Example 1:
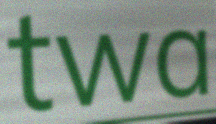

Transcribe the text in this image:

twa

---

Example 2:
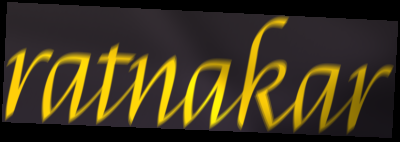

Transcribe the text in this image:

ratnakar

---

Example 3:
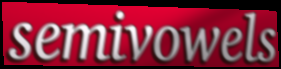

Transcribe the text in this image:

semivowels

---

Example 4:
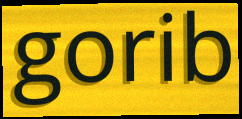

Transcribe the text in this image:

gorib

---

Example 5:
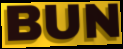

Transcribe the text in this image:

BUN